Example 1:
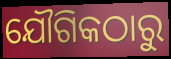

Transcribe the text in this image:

ଯୌଗିକଠାରୁ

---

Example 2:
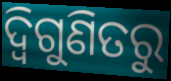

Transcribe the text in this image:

ଦ୍ୱିଗୁଣିତରୁ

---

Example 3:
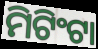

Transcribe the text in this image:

ମିଟିଂଟା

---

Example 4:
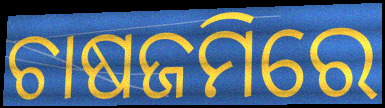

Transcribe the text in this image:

ଚାଷଜମିରେ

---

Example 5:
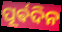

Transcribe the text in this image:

ପୂର୍ଵଦିନ